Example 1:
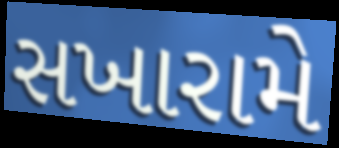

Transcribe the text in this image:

સખારામે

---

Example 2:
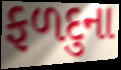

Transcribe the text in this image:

ફળદુના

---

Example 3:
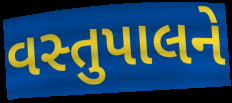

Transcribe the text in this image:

વસ્તુપાલને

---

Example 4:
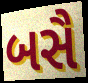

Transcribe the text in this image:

બસૈ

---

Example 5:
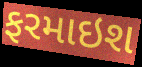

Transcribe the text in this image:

ફરમાઇશ